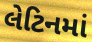
લેટિનમાં